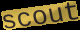
scout